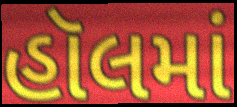
હૉલમાં